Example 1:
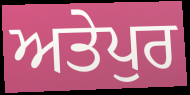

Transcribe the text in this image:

ਅਤੇਪੁਰ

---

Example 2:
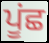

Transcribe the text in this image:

ਪੂਂਛ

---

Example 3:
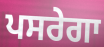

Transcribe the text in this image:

ਪਸਰੇਗਾ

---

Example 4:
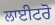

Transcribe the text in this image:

ਲਾਈਟਰੋ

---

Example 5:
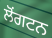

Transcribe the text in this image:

ਲੋਂਗਟਨ